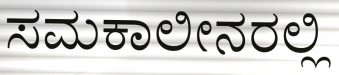
ಸಮಕಾಲೀನರಲ್ಲಿ